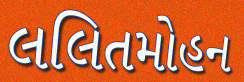
લલિતમોહન